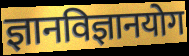
ज्ञानविज्ञानयोग